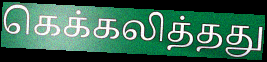
கெக்கலித்தது